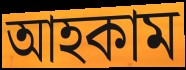
আহকাম